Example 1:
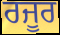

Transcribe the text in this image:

ਰਜੂਰ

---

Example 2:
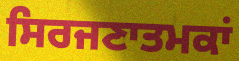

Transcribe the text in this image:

ਸਿਰਜਣਾਤਮਕਾਂ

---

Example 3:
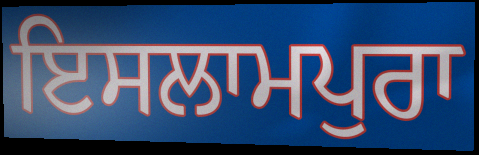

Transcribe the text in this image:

ਇਸਲਾਮਪੁਰਾ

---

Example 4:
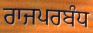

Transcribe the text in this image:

ਰਾਜਪਰਬੰਧ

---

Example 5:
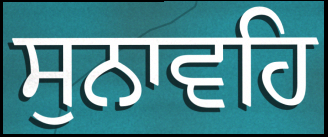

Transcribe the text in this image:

ਸੁਨਾਵਹਿ